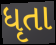
ધૃતા